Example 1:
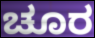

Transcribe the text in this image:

ಚೂರ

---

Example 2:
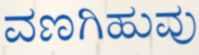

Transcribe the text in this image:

ವಣಗಿಹುವು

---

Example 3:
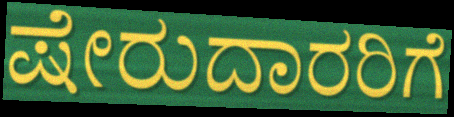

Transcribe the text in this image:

ಷೇರುದಾರರಿಗೆ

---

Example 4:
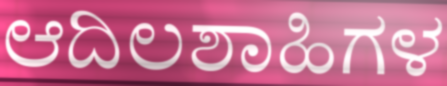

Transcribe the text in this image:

ಆದಿಲಶಾಹಿಗಳ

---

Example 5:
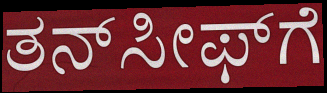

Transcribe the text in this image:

ತನ್‍ಸೀಫ್‍ಗೆ